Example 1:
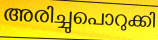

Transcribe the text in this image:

അരിച്ചുപൊറുക്കി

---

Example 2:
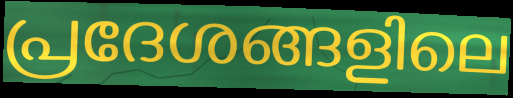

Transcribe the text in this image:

പ്രദേശങ്ങളിലെ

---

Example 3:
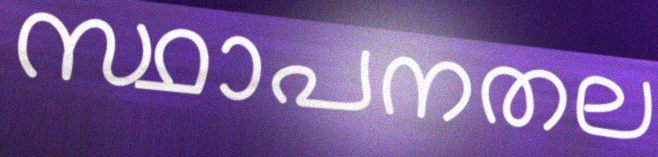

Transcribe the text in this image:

സ്ഥാപനതല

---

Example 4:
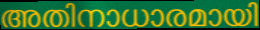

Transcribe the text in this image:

അതിനാധാരമായി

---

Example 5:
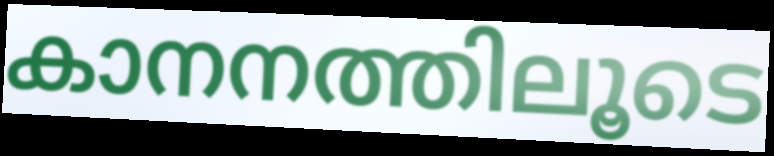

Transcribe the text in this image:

കാനനത്തിലൂടെ